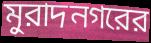
মুরাদনগরের